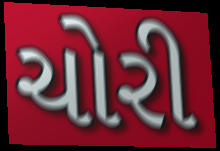
ચોરી